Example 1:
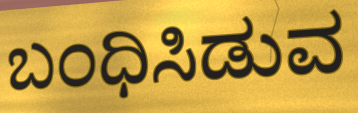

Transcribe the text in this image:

ಬಂಧಿಸಿಡುವ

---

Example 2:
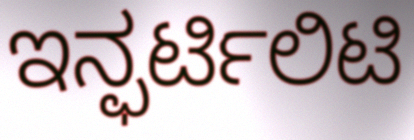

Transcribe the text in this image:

ಇನ್ಫರ್ಟಿಲಿಟಿ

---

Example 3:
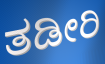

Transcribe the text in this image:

ತಡೀರಿ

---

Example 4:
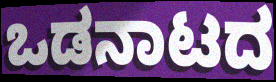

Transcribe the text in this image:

ಒಡನಾಟದ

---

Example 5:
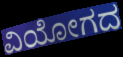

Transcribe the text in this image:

ವಿಯೋಗದ